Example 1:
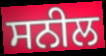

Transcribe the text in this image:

ਸਨੀਲ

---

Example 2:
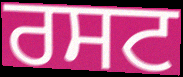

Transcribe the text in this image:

ਰਸਟ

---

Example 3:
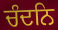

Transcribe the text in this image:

ਚੰਦਨਿ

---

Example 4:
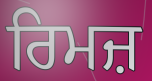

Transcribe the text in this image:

ਰਿਮਜ਼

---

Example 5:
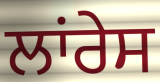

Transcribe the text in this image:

ਲਾਂਰੇਸ